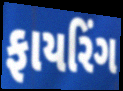
ફાયરિંગ